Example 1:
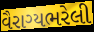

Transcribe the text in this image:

વૈરાગ્યભરેલી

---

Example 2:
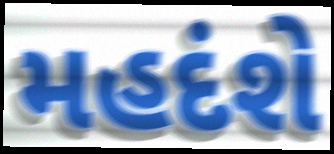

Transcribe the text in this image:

મહદંશે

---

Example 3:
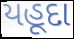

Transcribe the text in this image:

યહૂદા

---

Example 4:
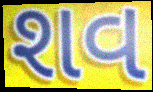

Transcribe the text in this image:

શવ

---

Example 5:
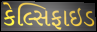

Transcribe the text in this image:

કેલ્સિફાઇડ